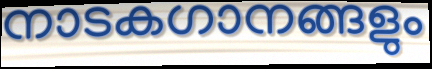
നാടകഗാനങ്ങളും